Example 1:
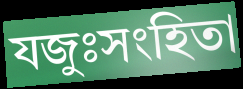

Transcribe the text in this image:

যজুঃসংহিতা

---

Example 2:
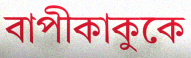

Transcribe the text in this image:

বাপীকাকুকে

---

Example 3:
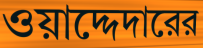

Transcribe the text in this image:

ওয়াদ্দেদারের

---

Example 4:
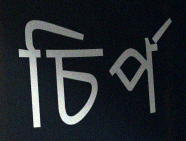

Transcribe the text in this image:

চির্প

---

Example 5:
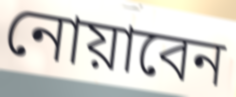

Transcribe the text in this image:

নোয়াবেন